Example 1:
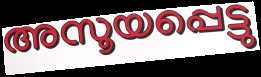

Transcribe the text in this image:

അസൂയപ്പെട്ടു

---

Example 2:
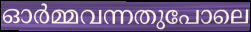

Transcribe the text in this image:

ഓർമ്മവന്നതുപോലെ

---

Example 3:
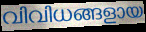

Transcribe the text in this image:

വിവിധങ്ങളായ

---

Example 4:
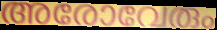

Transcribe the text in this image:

അരോവേരും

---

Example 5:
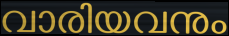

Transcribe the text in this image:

വാരിയവനും